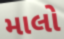
માલો